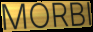
MORBI